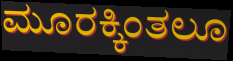
ಮೂರಕ್ಕಿಂತಲೂ